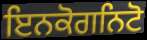
ਇਨਕੋਗਨਿਟੋ